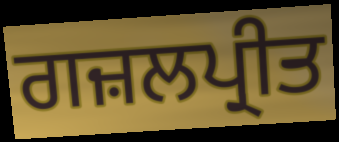
ਗਜ਼ਲਪ੍ਰੀਤ